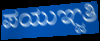
ಪಯುಞ್ಜತಿ